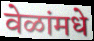
वेळांमधे